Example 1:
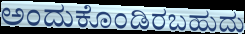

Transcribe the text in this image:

ಅಂದುಕೊಂಡಿರಬಹುದು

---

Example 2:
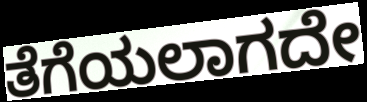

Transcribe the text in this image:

ತೆಗೆಯಲಾಗದೇ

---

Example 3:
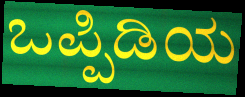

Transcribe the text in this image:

ಒಪ್ಪಿಡಿಯ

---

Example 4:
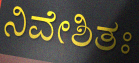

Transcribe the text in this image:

ನಿವೇಶಿತಃ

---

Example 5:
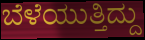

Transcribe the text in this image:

ಬೆಳೆಯುತ್ತಿದ್ದು